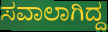
ಸವಾಲಾಗಿದ್ದ